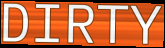
DIRTY